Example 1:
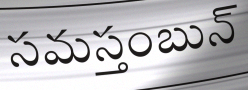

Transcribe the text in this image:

సమస్తంబున్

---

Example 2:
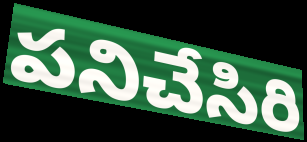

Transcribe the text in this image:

పనిచేసిరి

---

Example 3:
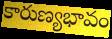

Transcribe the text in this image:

కారుణ్యభావం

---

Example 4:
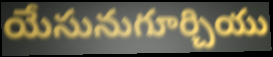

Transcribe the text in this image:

యేసునుగూర్చియు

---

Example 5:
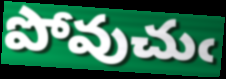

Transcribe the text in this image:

పోవుచుఁ